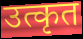
उत्कृत